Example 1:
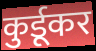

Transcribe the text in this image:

कुर्डूकर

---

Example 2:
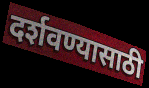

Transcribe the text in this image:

दर्शवण्यासाठी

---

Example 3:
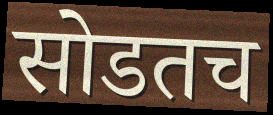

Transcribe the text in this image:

सोडतच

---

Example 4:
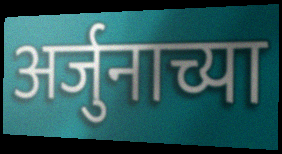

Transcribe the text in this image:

अर्जुनाच्या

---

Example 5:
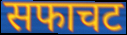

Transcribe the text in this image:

सफाचट